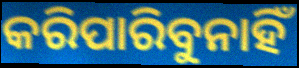
କରିପାରିବୁନାହିଁ